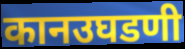
कानउघडणी